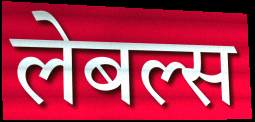
लेबल्स